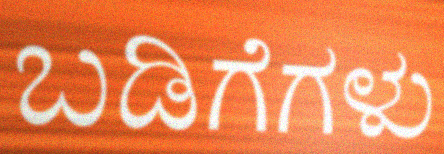
ಬಡಿಗೆಗಳು